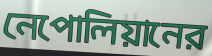
নেপোলিয়ানের